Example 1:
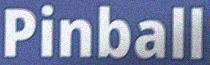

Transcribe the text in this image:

Pinball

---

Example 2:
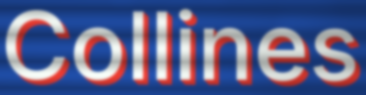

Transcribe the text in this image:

Collines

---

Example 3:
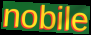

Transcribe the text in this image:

nobile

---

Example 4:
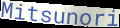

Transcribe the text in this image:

Mitsunori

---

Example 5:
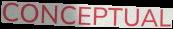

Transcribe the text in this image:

CONCEPTUAL